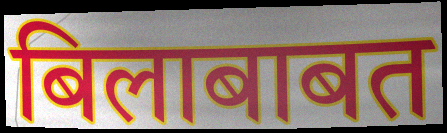
बिलाबाबत